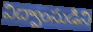
విద్వాంసుడిని